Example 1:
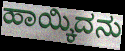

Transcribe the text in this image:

ಹಾಯ್ಕಿದನು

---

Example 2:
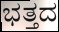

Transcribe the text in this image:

ಭತ್ತದ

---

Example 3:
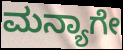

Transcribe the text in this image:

ಮನ್ಯಾಗೇ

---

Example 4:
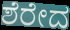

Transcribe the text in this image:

ಶೆರೇದ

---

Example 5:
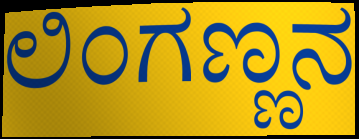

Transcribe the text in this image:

ಲಿಂಗಣ್ಣನ